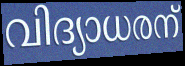
വിദ്യാധരന്